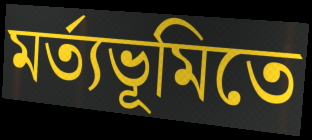
মর্ত্যভূমিতে